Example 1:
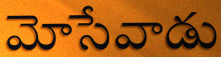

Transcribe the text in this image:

మోసేవాడు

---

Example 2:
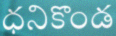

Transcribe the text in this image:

ధనికొండ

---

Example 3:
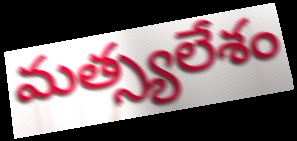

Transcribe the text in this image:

మత్స్యలేశం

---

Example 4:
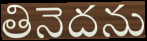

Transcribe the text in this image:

తినెదను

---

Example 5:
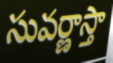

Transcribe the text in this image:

సువర్ణాస్తా